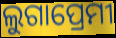
ଲୁଗାପ୍ରେମୀ